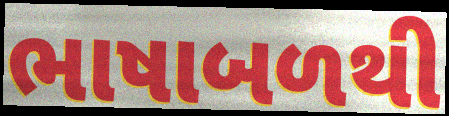
ભાષાબળથી